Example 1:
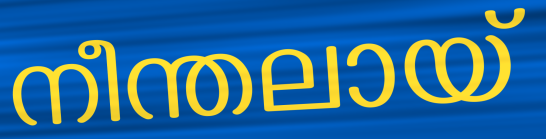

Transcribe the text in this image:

നീന്തലായ്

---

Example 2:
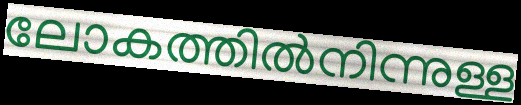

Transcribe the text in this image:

ലോകത്തിൽനിന്നുള്ള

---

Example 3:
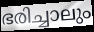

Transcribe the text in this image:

ഭരിച്ചാലും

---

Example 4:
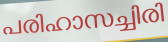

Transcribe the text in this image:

പരിഹാസച്ചിരി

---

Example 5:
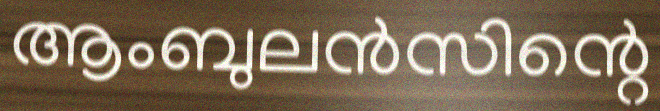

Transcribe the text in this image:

ആംബുലൻസിന്റെ